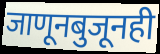
जाणूनबुजूनही